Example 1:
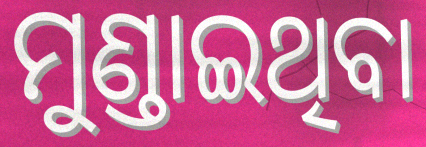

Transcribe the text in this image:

ମୁଣ୍ଡାଇଥିବା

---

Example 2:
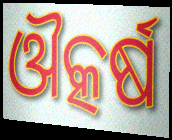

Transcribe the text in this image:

ଔତ୍କର୍ଷ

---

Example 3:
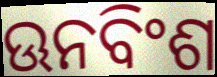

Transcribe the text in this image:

ଊନବିଂଶ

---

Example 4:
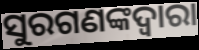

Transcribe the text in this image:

ସୁରଗଣଙ୍କଦ୍ୱାରା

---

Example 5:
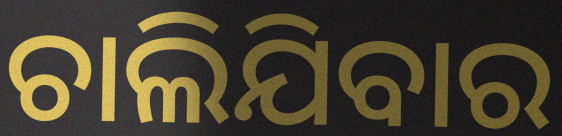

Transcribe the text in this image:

ଚାଲିଯିବାର